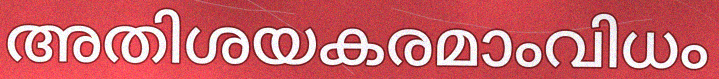
അതിശയകരമാംവിധം